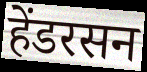
हेंडरसन